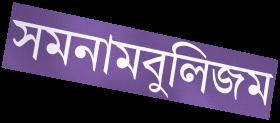
সমনামবুলিজম